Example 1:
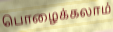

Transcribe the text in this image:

பொழைக்கலாம்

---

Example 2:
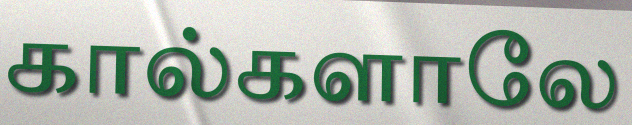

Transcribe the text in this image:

கால்களாலே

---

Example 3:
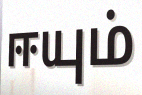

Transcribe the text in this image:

ஈயும்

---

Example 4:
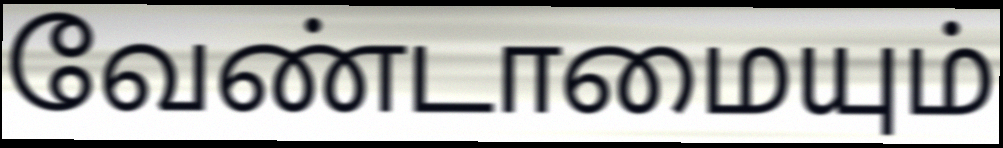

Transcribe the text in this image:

வேண்டாமையும்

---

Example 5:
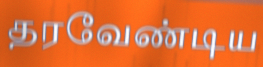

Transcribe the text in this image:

தரவேண்டிய